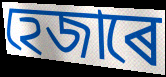
হেজাৰে